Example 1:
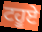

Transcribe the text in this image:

ਟਹੂਏ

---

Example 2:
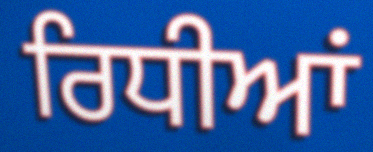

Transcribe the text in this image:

ਰਿਧੀਆਂ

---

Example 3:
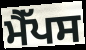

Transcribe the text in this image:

ਮੈੱਪਸ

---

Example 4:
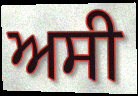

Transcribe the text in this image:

ਅਸੀ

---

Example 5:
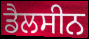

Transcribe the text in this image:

ਡੈਲਸੀਨ